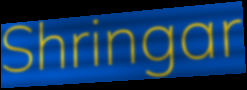
Shringar